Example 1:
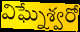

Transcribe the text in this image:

విఘ్నేశ్వరో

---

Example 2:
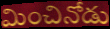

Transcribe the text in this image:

మించినోడు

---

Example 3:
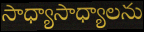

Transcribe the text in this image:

సాధ్యాసాధ్యాలను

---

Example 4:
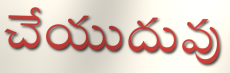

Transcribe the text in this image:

చేయుదువు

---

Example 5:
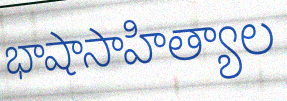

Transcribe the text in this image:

భాషాసాహిత్యాల